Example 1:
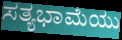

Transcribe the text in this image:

ಸತ್ಯಭಾಮೆಯು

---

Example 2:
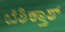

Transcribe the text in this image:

ಬೆಶಿಕ್ತಾಶ್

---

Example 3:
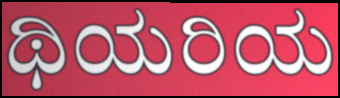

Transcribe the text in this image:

ಥಿಯರಿಯ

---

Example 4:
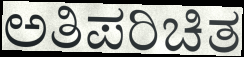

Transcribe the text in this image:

ಅತಿಪರಿಚಿತ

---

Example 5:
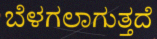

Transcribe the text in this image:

ಬೆಳಗಲಾಗುತ್ತದೆ